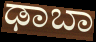
ಢಾಬಾ